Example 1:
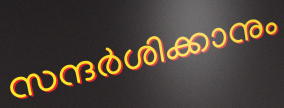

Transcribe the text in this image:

സന്ദർശിക്കാനും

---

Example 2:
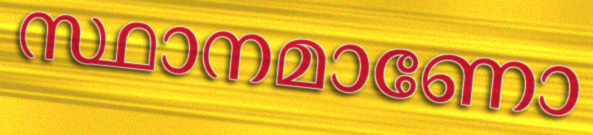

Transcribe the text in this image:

സ്ഥാനമാണോ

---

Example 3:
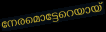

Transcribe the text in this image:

നേരമൊട്ടേറെയായ്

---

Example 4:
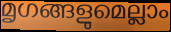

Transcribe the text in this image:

മൃഗങ്ങളുമെല്ലാം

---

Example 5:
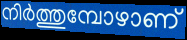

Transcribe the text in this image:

നിർത്തുമ്പോഴാണ്